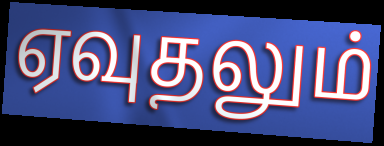
ஏவுதலும்